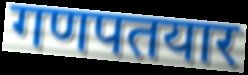
गणपतयार